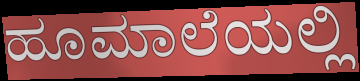
ಹೂಮಾಲೆಯಲ್ಲಿ